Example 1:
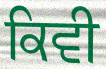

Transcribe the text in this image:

ਕਿਵੀ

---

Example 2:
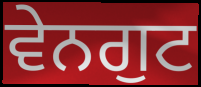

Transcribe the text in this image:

ਵੇਨਗੁਟ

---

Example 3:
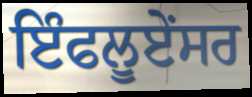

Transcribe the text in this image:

ਇੰਫਲੂਏਂਸਰ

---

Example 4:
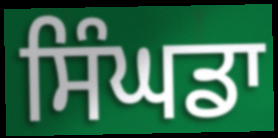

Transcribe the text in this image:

ਸਿੰਘਡਾ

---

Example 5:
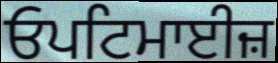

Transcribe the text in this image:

ਓਪਟਿਮਾਈਜ਼